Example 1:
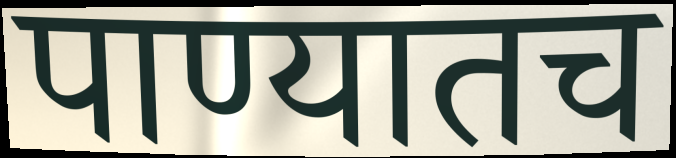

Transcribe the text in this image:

पाण्यातच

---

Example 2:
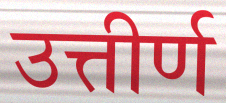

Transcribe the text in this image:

उत्तीर्ण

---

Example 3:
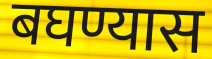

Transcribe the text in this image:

बघण्यास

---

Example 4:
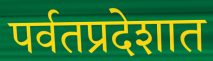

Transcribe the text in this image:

पर्वतप्रदेशात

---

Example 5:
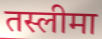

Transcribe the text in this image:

तस्लीमा